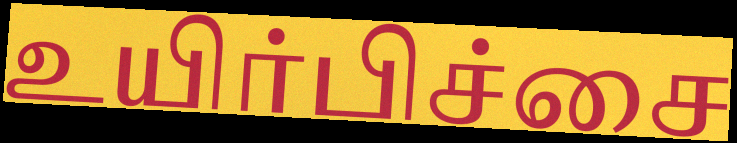
உயிர்பிச்சை